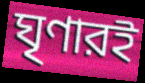
ঘৃণারই